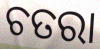
ଚତରା